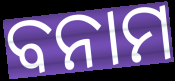
ବନାମ